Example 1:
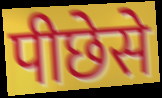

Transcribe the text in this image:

पीछेसे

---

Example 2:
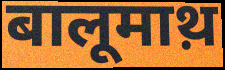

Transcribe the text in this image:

बालूमाथ़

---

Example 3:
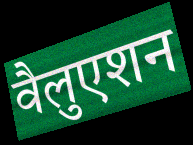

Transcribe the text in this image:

वैलुएशन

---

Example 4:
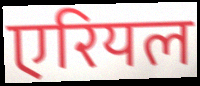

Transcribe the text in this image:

एरियल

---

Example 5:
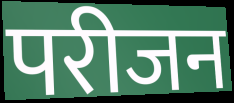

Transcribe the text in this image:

परीजन